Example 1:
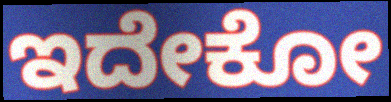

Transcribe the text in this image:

ಇದೇಕೋ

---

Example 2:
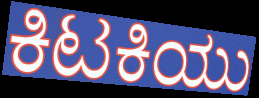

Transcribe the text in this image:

ಕಿಟಕಿಯು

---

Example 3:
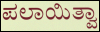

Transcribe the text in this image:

ಪಲಾಯಿತ್ವಾ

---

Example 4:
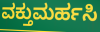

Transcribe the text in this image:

ವಕ್ತುಮರ್ಹಸಿ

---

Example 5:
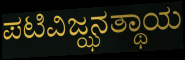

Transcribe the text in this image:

ಪಟಿವಿಜ್ಝನತ್ಥಾಯ